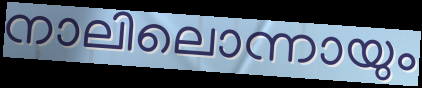
നാലിലൊന്നായും